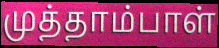
முத்தாம்பாள்